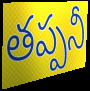
తప్పనీ